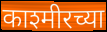
काश्मीरच्या